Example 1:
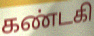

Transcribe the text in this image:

கண்டகி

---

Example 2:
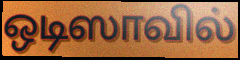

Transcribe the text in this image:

ஒடிஸாவில்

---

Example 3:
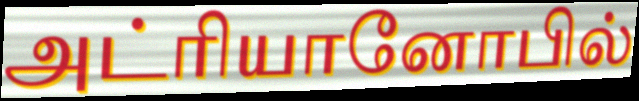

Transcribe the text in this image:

அட்ரியானோபில்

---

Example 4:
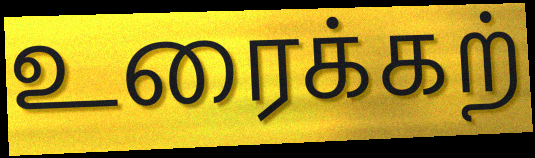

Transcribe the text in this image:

உரைக்கற்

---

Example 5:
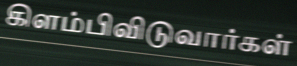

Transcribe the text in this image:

கிளம்பிவிடுவார்கள்